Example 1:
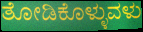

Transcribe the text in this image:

ತೋಡಿಕೊಳ್ಳುವಳು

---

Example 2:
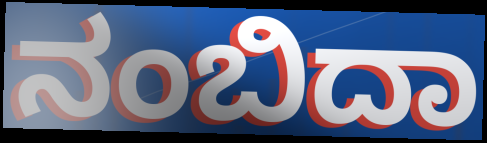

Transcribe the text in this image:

ನಂಬಿದಾ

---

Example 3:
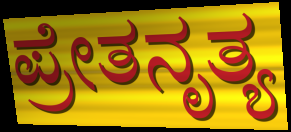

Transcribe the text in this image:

ಪ್ರೇತನೃತ್ಯ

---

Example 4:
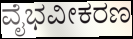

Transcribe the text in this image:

ವೈಭವೀಕರಣ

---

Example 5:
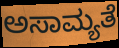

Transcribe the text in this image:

ಅಸಾಮ್ಯತೆ